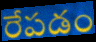
రేపడం